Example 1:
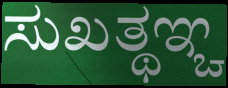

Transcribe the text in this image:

ಸುಖತ್ಥಞ್ಚ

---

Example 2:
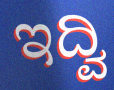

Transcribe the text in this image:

ಇದ್ವಿ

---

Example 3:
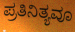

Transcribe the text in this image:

ಪ್ರತಿನಿತ್ಯವೂ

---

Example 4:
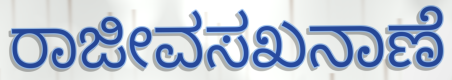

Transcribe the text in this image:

ರಾಜೀವಸಖನಾಣೆ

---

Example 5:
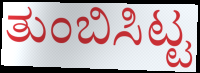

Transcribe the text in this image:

ತುಂಬಿಸಿಟ್ಟ